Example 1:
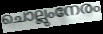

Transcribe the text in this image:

ചൊല്ലുംനേരം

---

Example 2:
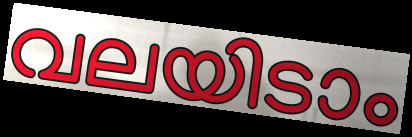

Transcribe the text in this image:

വലയിടാം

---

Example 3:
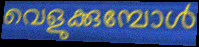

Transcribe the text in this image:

വെളുക്കുമ്പോൾ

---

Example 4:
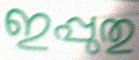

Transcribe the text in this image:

ഇപ്പുതു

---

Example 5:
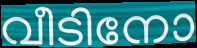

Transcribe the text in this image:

വീടിനോ